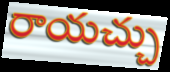
రాయచ్చు